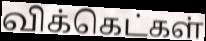
விக்கெட்கள்